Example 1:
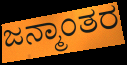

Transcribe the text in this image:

ಜನ್ಮಾಂತರ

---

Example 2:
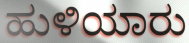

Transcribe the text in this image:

ಹುಳಿಯಾರು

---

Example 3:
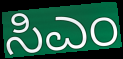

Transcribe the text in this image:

ಸಿಎಂ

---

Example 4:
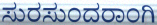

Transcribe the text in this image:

ಸುರಸುಂದರಾಂಗಿ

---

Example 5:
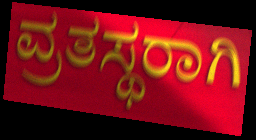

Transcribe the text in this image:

ವ್ರತಸ್ಥರಾಗಿ